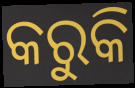
କରୁକି